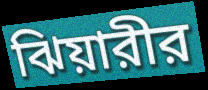
ঝিয়ারীর